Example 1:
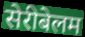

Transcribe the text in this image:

सेरीबेलम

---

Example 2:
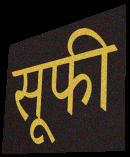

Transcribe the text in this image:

सूफी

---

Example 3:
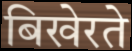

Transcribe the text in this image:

बिखेरते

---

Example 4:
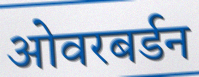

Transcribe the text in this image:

ओवरबर्डन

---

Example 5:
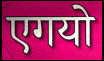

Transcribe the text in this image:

एगयो